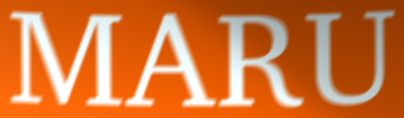
MARU